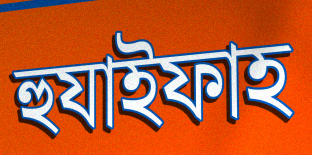
হুযাইফাহ